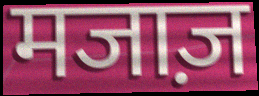
मजाज़